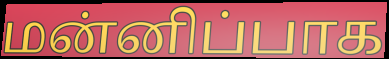
மன்னிப்பாக